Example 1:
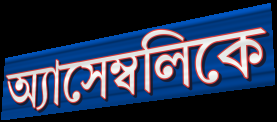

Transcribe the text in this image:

অ্যাসেম্বলিকে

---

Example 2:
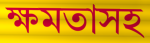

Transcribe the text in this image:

ক্ষমতাসহ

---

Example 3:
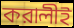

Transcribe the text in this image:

করালীই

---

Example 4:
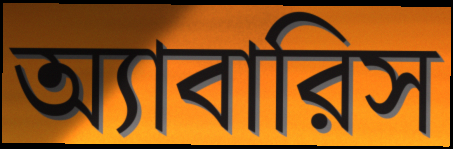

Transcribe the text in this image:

অ্যাবারিস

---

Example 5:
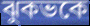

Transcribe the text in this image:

ঝুকভকে